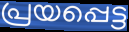
പ്രയപ്പെട്ട